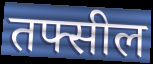
तफ्सील